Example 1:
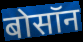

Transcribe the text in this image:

बोसॉन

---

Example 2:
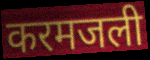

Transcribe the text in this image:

करमजली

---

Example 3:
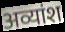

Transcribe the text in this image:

अव्यांश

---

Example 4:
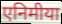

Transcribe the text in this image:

एनिमीया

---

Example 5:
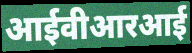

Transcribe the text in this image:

आईवीआरआई